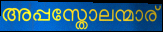
അപ്പസ്തോലന്മാര്